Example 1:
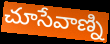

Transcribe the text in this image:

చూసేవాణ్ని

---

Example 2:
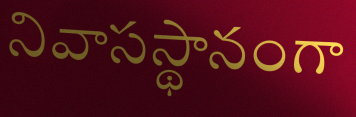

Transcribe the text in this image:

నివాసస్థానంగా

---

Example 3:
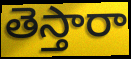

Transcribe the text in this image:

తెస్తారా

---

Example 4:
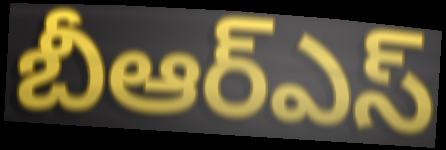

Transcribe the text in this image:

బీఆర్ఎస్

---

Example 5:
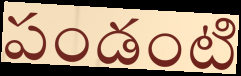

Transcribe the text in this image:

పండంటి